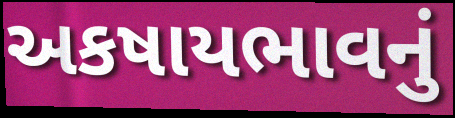
અકષાયભાવનું